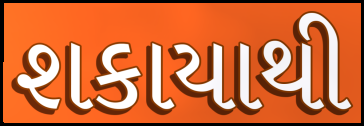
શકાયાથી